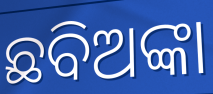
ଛବିଅଙ୍କା